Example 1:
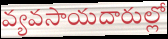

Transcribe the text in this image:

వ్యవసాయదారుల్లో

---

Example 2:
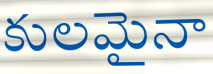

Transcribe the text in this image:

కులమైనా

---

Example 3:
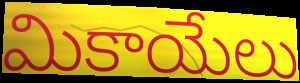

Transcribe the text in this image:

మికాయేలు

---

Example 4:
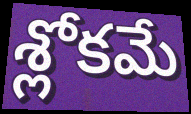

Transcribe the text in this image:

శ్లోకమే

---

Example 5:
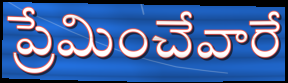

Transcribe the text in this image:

ప్రేమించేవారే